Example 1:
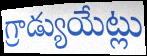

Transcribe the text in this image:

గ్రాడ్యుయేట్లు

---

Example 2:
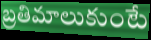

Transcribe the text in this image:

బ్రతిమాలుకుంటే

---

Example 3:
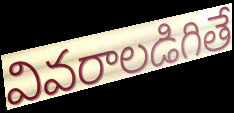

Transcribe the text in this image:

వివరాలడిగితే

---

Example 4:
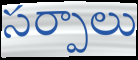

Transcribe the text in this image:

సర్పాలు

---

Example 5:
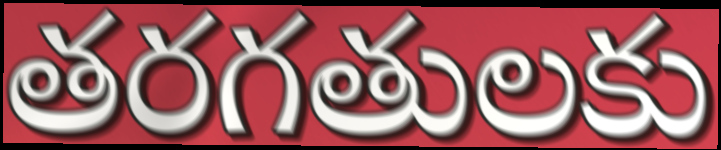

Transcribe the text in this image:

తరగతులకు